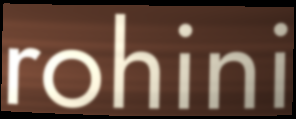
rohini